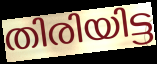
തിരിയിട്ട